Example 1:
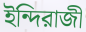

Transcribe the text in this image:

ইন্দিরাজী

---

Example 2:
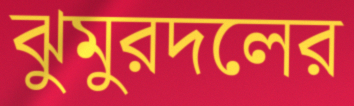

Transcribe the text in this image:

ঝুমুরদলের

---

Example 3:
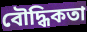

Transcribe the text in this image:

বৌদ্ধিকতা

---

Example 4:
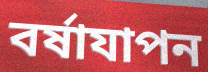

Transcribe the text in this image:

বর্ষাযাপন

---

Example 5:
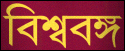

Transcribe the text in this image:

বিশ্ববঙ্গ